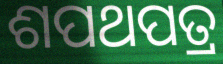
ଶପଥପତ୍ର